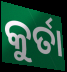
କୁର୍ତା